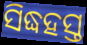
ସିଦ୍ଧହସ୍ତ